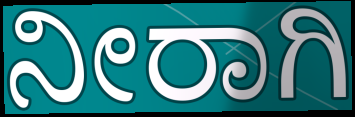
ನೀರಾಗಿ